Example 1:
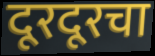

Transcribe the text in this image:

दूरदूरचा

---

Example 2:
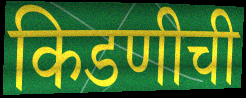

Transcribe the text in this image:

किडणीची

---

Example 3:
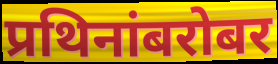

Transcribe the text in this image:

प्रथिनांबरोबर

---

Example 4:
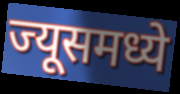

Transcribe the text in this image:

ज्यूसमध्ये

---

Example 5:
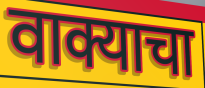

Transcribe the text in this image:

वाक्याचा